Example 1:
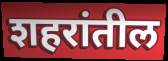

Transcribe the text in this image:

शहरांतील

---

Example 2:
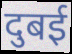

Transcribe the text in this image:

दुबई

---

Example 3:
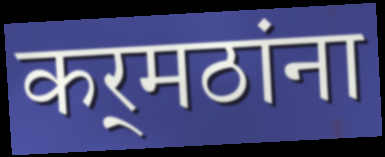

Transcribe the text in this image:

कर्मठांना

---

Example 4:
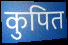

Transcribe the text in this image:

कुपित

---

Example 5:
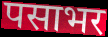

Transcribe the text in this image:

पसाभर